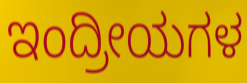
ಇಂದ್ರೀಯಗಳ